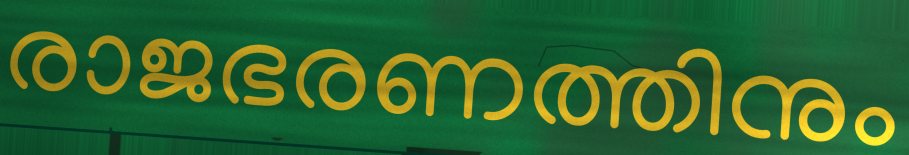
രാജഭരണത്തിനും